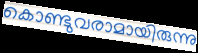
കൊണ്ടുവരാമായിരുന്നു